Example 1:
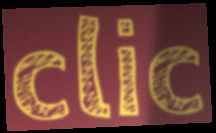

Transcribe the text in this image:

clic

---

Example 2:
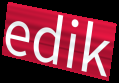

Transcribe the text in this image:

edik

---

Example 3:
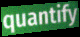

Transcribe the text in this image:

quantify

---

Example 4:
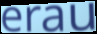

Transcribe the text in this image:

erau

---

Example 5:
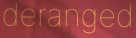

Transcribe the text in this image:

deranged